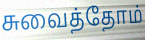
சுவைத்தோம்